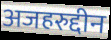
अजहरुद्दीन